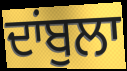
ਦਾਂਬੁਲਾ